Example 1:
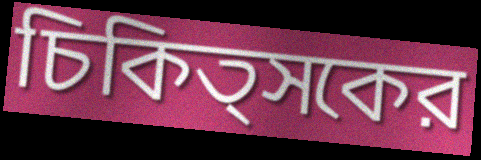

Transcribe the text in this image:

চিকিত্সকের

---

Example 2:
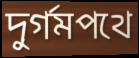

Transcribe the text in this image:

দুর্গমপথে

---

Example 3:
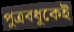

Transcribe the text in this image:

পুত্রবধূকেই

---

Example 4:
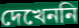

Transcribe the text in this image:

দেখেননি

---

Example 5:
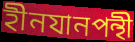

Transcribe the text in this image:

হীনযানপন্থী